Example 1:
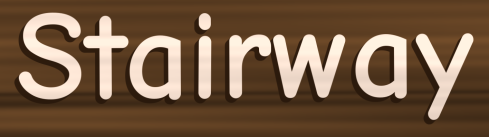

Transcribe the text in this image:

Stairway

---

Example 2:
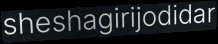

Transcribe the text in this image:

sheshagirijodidar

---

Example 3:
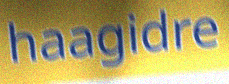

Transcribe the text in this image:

haagidre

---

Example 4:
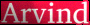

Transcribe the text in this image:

Arvind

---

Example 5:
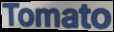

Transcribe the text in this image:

Tomato